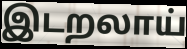
இடறலாய்